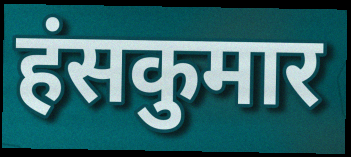
हंसकुमार